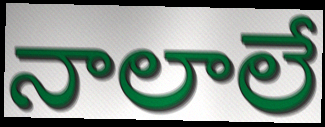
నాలాలే